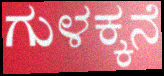
ಗುಳಕ್ಕನೆ